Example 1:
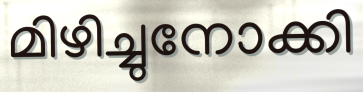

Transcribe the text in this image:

മിഴിച്ചുനോക്കി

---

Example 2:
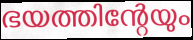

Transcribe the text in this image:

ഭയത്തിന്റേയും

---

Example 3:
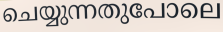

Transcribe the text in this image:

ചെയ്യുന്നതുപോലെ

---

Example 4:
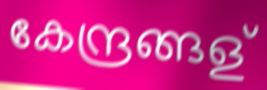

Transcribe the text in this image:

കേന്ദ്രങ്ങള്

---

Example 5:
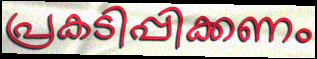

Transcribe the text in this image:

പ്രകടിപ്പിക്കണം